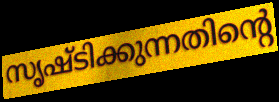
സൃഷ്ടിക്കുന്നതിന്റെ